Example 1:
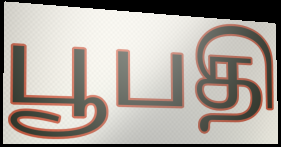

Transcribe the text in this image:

பூபதி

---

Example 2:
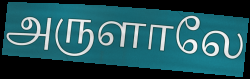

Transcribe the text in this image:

அருளாலே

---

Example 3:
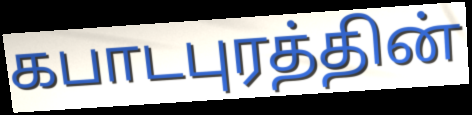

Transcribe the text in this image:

கபாடபுரத்தின்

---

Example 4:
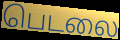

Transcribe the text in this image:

பெடலை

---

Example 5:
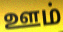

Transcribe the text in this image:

ஊம்